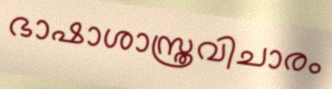
ഭാഷാശാസ്ത്രവിചാരം